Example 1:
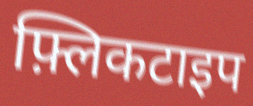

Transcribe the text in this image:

फ़्लिकटाइप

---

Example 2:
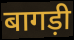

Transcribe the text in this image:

बागड़ी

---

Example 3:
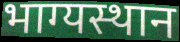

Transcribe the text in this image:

भाग्यस्थान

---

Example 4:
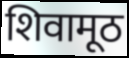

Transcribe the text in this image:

शिवामूठ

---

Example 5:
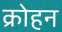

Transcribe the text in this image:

क्रोहन